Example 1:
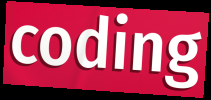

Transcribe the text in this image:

coding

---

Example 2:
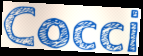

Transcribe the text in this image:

Cocci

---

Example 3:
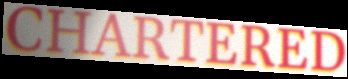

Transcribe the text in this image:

CHARTERED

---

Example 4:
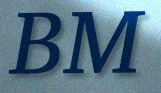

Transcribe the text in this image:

BM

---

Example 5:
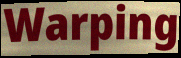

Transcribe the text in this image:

Warping